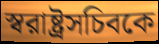
স্বরাষ্ট্রসচিবকে